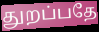
துறப்பதே